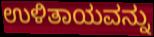
ಉಳಿತಾಯವನ್ನು